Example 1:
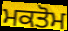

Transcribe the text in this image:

ਮਕਤੋਮ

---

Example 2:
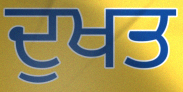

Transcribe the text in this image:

ਦੁਖਤ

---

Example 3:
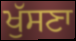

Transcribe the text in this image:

ਖੁੱਸਣਾ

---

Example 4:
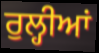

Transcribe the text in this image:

ਰੁਲ੍ਹੀਆਂ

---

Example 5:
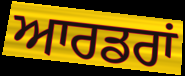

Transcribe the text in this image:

ਆਰਡਰਾਂ